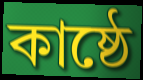
কাষ্ঠে